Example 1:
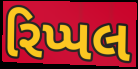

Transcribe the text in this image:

રિપ્પલ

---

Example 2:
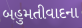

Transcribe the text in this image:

બહુમતીવાદના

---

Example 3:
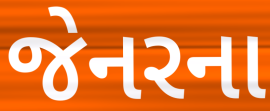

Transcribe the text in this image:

જેનરના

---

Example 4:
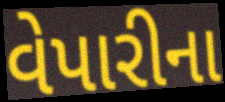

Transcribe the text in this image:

વેપારીના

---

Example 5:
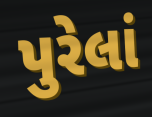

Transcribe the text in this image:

પુરેલાં